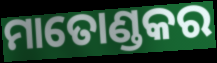
ମାତୋଣ୍ଡକର